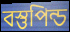
বস্তুপিন্ড